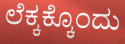
ಲೆಕ್ಕಕ್ಕೊಂದು